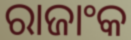
ରାଜାଂକ